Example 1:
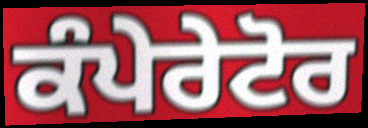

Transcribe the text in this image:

ਕੰਪੇਰੇਟੋਰ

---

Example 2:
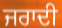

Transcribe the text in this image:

ਜਰਾਦੀ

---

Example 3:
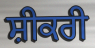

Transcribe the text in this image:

ਸ਼ੀਕਰੀ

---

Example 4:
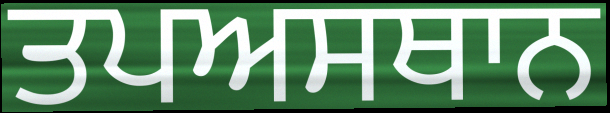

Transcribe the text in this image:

ਤਪਅਸਥਾਨ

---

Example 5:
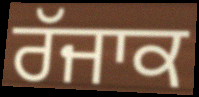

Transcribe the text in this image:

ਰੱਜਾਕ